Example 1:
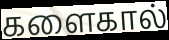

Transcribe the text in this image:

களைகால்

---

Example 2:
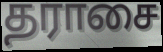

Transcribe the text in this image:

தராசை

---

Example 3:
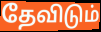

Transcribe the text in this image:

தேவிடும்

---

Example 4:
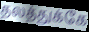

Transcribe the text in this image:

தலத்துக்கே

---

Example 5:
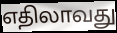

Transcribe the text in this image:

எதிலாவது